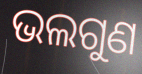
ଭଲଗୁଣ